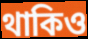
থাকিও